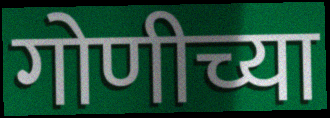
गोणीच्या